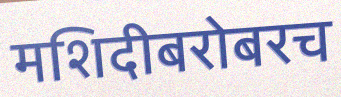
मशिदीबरोबरच